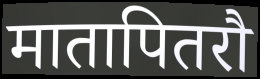
मातापितरौ